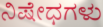
ನಿಷೇಧಗಳು